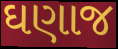
ઘણાજ